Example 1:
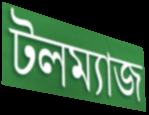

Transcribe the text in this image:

টলম্যাজ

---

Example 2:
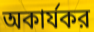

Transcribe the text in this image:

অকার্যকর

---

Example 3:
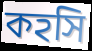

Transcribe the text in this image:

কহসি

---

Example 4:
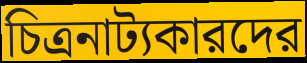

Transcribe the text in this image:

চিত্রনাট্যকারদের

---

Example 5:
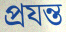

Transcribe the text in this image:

প্রযন্ত